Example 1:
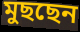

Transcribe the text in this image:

মুছছেন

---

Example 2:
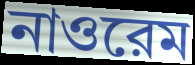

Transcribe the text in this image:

নাওরেম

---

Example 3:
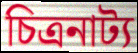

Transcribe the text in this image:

চিত্রনাট্য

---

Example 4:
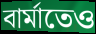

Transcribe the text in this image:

বার্মাতেও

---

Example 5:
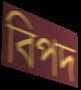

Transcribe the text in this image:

বিপদ